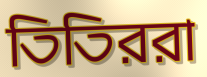
তিতিররা